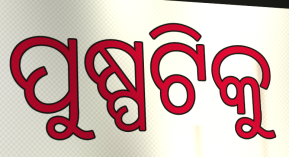
ପୁଷ୍ପଟିକୁ